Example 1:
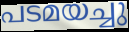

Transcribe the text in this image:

പടമയച്ചു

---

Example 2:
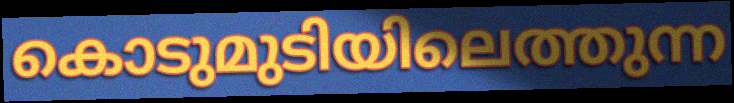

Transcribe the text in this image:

കൊടുമുടിയിലെത്തുന്ന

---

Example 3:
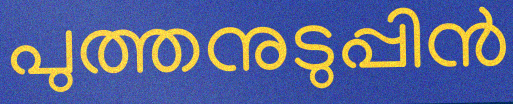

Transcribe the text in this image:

പുത്തനുടുപ്പിൻ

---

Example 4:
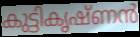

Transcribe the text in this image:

കുട്ടികൃഷ്ണൻ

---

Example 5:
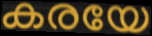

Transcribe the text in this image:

കരയേ